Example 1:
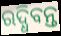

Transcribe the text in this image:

ଋଦ୍ଧିବନ୍ତ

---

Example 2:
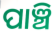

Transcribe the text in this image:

ପାଞ୍ଚି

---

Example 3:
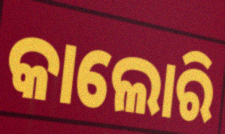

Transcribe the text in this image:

କାଲୋରି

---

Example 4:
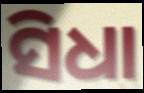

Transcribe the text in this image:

ସିଧା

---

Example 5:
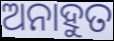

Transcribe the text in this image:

ଅନାହୁତ